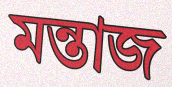
মন্তাজ